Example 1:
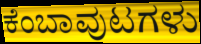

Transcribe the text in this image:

ಕೆಂಬಾವುಟಗಳು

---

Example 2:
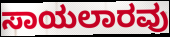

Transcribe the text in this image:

ಸಾಯಲಾರವು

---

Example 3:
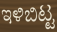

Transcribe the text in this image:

ಇಳಿಬಿಟ್ಟ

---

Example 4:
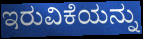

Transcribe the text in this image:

ಇರುವಿಕೆಯನ್ನು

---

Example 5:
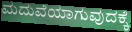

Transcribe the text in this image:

ಮದುವೆಯಾಗುವುದಕ್ಕೆ